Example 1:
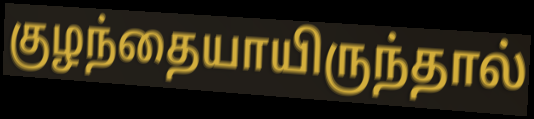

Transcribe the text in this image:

குழந்தையாயிருந்தால்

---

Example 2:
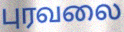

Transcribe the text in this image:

புரவலை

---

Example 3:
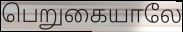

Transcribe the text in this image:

பெறுகையாலே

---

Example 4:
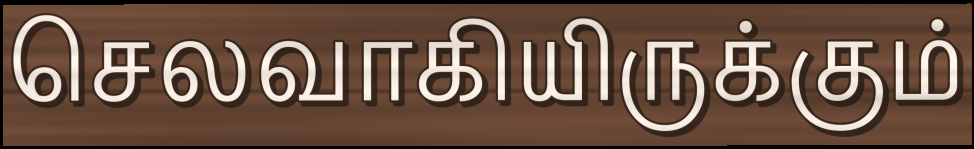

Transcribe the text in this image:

செலவாகியிருக்கும்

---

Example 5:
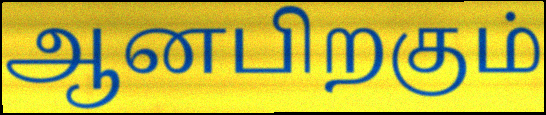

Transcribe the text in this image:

ஆனபிறகும்